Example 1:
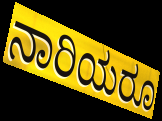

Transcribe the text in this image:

ನಾರಿಯರೂ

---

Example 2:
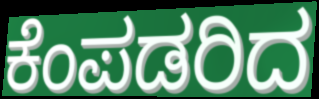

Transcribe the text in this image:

ಕೆಂಪಡರಿದ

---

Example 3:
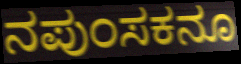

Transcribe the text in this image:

ನಪುಂಸಕನೂ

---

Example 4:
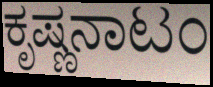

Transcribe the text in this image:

ಕೃಷ್ಣನಾಟಂ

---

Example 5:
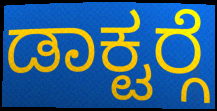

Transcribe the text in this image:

ಡಾಕ್ಟರ್‍ಗೆ